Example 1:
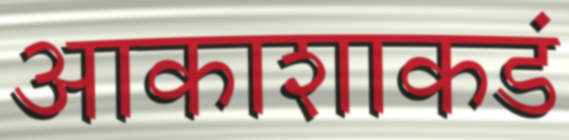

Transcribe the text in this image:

आकाशाकडं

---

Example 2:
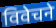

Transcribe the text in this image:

विवेचने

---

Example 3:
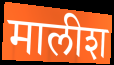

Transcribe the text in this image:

मालीश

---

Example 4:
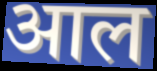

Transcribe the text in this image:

आल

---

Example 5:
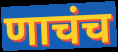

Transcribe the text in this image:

णाचंच